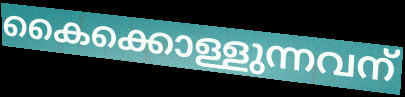
കൈക്കൊള്ളുന്നവന്